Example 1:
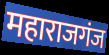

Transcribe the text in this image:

महाराजगंज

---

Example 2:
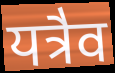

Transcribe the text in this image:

यत्रैव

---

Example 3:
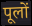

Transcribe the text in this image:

पूलों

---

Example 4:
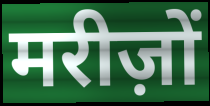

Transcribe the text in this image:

मरीज़ों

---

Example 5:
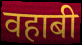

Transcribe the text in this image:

वहाबी